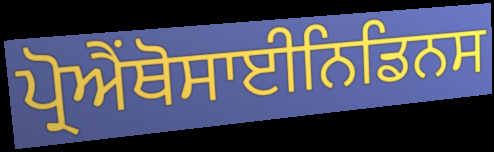
ਪ੍ਰੋਐਂਥੋਸਾਈਨਿਡਿਨਸ